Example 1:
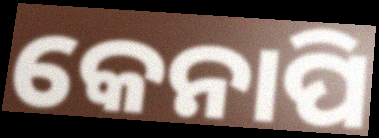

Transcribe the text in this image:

କେନାପି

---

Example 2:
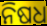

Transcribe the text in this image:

ନିଷଧ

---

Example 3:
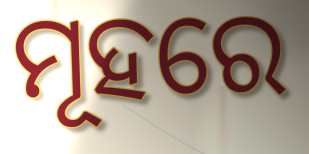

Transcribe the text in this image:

ମୂହରେ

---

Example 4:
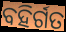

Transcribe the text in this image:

ବହିର୍ଗତ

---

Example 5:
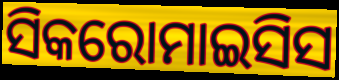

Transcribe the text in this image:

ସିକରୋମାଇସିସ